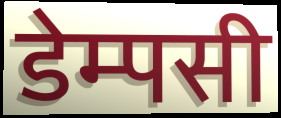
डेम्पसी